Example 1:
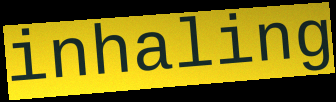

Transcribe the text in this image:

inhaling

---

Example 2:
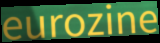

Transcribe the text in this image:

eurozine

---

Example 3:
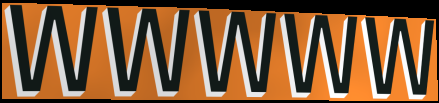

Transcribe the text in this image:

wwwww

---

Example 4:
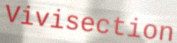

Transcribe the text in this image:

Vivisection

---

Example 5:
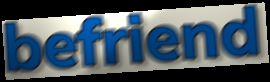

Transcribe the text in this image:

befriend